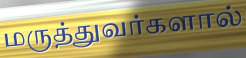
மருத்துவர்களால்